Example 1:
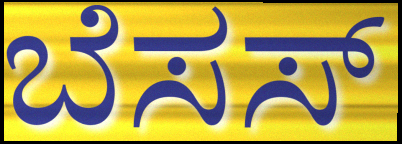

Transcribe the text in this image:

ಬೆಸಸ್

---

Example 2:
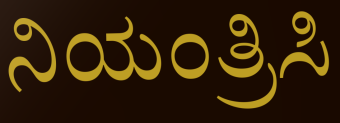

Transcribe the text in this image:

ನಿಯಂತ್ರಿಸಿ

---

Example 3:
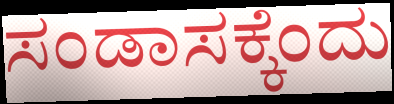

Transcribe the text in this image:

ಸಂಡಾಸಕ್ಕೆಂದು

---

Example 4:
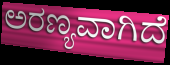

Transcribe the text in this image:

ಅರಣ್ಯವಾಗಿದೆ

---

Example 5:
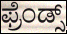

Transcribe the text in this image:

ಫ್ರೆಂಡ್ಸ್